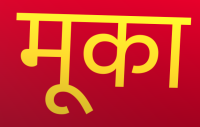
मूका